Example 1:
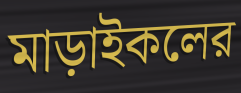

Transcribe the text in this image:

মাড়াইকলের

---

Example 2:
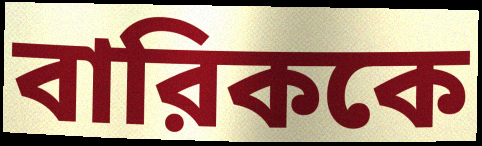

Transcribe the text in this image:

বারিককে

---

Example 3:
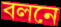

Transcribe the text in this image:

বলনে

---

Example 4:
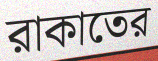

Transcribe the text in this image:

রাকাতের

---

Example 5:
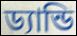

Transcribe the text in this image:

ড্যান্ডি